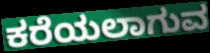
ಕರೆಯಲಾಗುವ